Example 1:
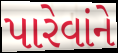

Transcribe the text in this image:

પારેવાંને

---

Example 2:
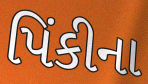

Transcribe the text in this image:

પિંકીના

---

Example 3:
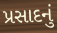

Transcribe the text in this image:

પ્રસાદનું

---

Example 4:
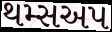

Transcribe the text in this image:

થમ્સઅપ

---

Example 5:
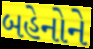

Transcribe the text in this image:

બહેનોને